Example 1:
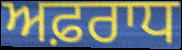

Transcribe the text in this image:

ਅਫ਼ਰਾਧ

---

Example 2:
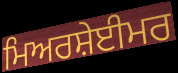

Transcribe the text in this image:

ਮਿਅਰਸ਼ੇਈਮਰ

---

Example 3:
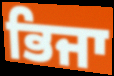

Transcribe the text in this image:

ਭਿਜਾ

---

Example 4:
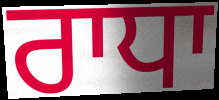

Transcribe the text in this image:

ਰਾਧਾ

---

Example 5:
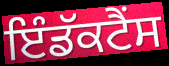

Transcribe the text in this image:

ਇੰਡੱਕਟੈਂਸ